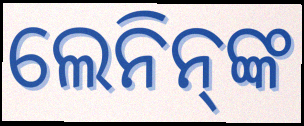
ଲେନିନ୍‌ଙ୍କ